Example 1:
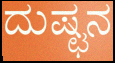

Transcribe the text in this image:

ದುಷ್ಟನ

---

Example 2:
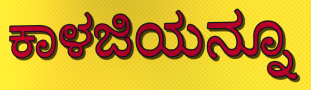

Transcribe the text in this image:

ಕಾಳಜಿಯನ್ನೂ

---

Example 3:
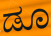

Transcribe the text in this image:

ಡೂ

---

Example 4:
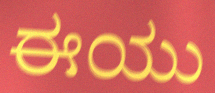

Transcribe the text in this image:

ಈಯು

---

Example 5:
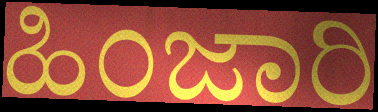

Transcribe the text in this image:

ಹಿಂಜಾರಿ